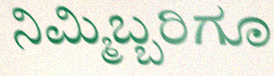
ನಿಮ್ಮಿಬ್ಬರಿಗೂ